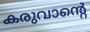
കരുവാന്റെ